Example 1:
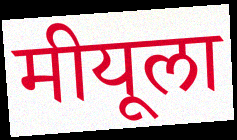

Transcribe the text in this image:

मीयूला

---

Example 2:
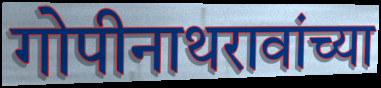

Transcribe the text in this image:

गोपीनाथरावांच्या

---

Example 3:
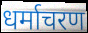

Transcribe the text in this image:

धर्माचरण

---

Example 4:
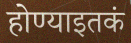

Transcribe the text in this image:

होण्याइतकं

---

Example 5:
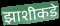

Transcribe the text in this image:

झाशीकडे